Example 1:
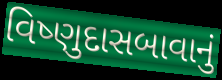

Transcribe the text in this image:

વિષ્ણુદાસબાવાનું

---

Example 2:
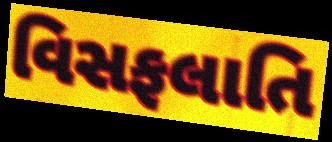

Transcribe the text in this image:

વિસફલાતિ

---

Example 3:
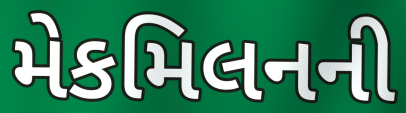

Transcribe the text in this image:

મેકમિલનની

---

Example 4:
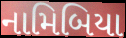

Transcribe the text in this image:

નામિબિયા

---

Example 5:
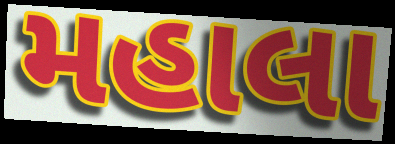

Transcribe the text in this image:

મહાલા